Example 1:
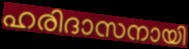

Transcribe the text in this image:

ഹരിദാസനായി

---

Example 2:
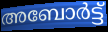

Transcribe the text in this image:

അബോർട്ട്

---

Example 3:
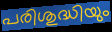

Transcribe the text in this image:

പരിശുദ്ധിയും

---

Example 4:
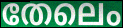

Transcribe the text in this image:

തേലെം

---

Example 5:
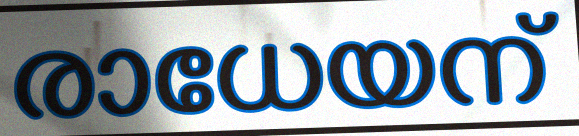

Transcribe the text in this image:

രാധേയന്